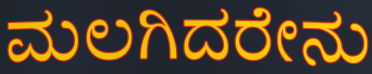
ಮಲಗಿದರೇನು